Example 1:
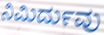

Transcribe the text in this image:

ನಿಮಿರ್ದುವು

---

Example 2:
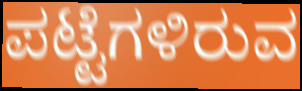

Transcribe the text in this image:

ಪಟ್ಟೆಗಳಿರುವ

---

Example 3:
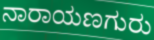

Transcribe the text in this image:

ನಾರಾಯಣಗುರು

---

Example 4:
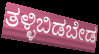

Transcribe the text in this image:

ತಳ್ಳಿಬಿಡಬೇಡ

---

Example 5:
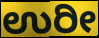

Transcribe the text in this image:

ಉರೀ